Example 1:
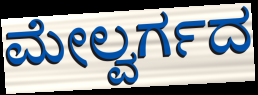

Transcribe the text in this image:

ಮೇಲ್ವರ್ಗದ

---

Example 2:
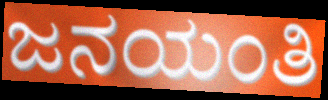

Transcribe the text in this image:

ಜನಯಂತಿ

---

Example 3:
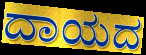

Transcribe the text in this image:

ದಾಯದ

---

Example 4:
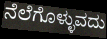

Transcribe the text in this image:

ನೆಲೆಗೊಳ್ಳುವದು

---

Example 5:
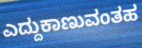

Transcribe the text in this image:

ಎದ್ದುಕಾಣುವಂತಹ